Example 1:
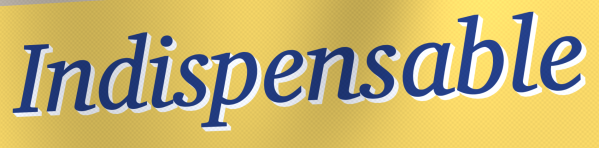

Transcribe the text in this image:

Indispensable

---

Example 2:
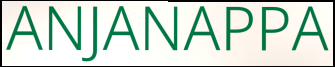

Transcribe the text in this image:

ANJANAPPA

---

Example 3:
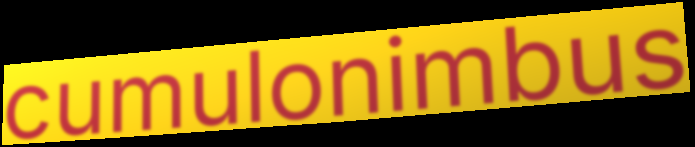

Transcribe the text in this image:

cumulonimbus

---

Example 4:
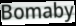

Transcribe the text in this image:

Bomaby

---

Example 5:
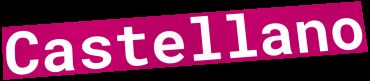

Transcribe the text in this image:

Castellano